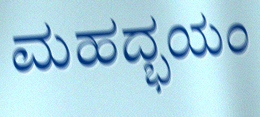
ಮಹದ್ಭಯಂ